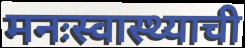
मनःस्वास्थ्याची